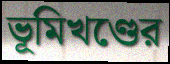
ভূমিখণ্ডের